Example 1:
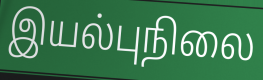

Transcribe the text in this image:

இயல்புநிலை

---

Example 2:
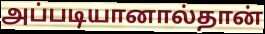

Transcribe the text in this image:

அப்படியானால்தான்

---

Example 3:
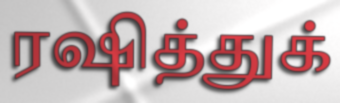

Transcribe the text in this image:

ரஷித்துக்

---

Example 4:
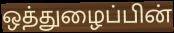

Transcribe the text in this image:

ஒத்துழைப்பின்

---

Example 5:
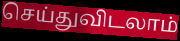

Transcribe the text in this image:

செய்துவிடலாம்